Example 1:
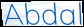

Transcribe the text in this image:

Abdal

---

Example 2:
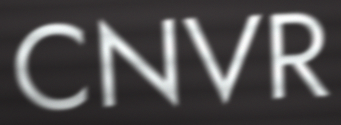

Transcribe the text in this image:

CNVR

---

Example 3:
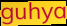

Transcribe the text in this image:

guhya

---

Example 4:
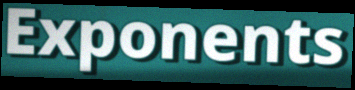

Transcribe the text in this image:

Exponents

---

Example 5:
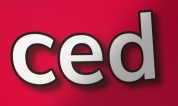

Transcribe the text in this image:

ced